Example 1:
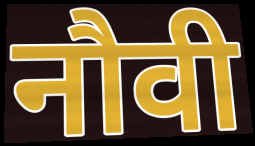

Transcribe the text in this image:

नौवी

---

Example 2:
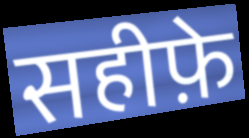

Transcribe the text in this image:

सहीफ़े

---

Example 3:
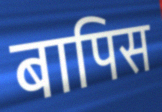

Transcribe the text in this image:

बापिस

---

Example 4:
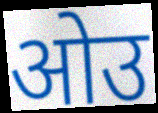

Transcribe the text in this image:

ओउ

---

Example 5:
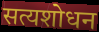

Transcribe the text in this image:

सत्यशोधन